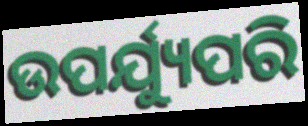
ଉପର୍ଯ୍ୟୁପରି